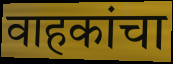
वाहकांचा